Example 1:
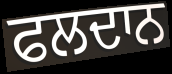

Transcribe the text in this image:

ਫਲਦਾਨ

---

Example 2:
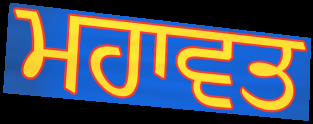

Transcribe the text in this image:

ਮਹਾਵਤ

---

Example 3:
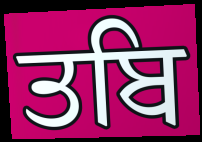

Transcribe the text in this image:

ਤਬਿ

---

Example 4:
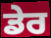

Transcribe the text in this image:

ਡੇਰ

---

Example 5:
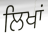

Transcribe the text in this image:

ਲਿਖਾਂ